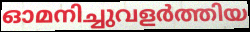
ഓമനിച്ചുവളർത്തിയ